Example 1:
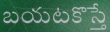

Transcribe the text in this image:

బయటకొస్తే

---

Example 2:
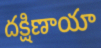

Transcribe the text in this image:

దక్షిణాయా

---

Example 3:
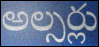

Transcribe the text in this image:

అల్సర్లు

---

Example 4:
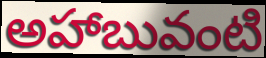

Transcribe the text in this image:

అహాబువంటి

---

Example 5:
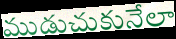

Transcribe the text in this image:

ముడుచుకునేలా